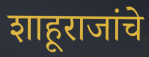
शाहूराजांचे